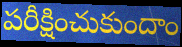
పరీక్షించుకుందాం